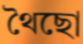
থৈছো